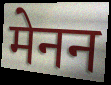
मेनन